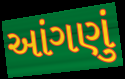
આંગણું